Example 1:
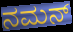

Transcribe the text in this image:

ನಮನ್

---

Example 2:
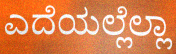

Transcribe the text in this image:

ಎದೆಯಲ್ಲೆಲ್ಲಾ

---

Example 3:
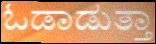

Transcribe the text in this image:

ಓಡಾಡುತ್ತಾ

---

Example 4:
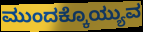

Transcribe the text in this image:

ಮುಂದಕ್ಕೊಯ್ಯುವ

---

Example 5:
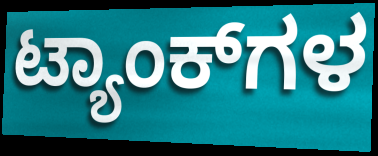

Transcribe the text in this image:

ಟ್ಯಾಂಕ್‌ಗಳ